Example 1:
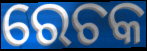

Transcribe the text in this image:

ରେଚକ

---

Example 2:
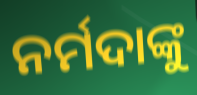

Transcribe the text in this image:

ନର୍ମଦାଙ୍କୁ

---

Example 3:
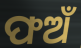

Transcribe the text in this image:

ଫଅଁ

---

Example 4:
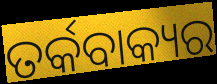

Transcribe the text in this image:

ତର୍କବାକ୍ୟର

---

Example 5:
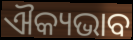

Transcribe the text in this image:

ଐକ୍ୟଭାବ